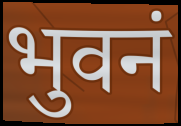
भुवनं